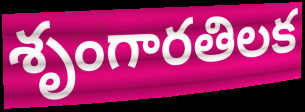
శృంగారతిలక